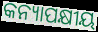
କନ୍ୟାପକ୍ଷୀୟ